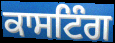
ਕਾਸਟਿੰਗ